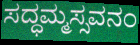
ಸದ್ಧಮ್ಮಸ್ಸವನಂ